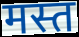
मस्त